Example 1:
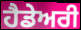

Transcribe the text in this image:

ਹੈਡੇਅਰੀ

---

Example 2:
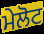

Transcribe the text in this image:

ਮੇਲੋਟ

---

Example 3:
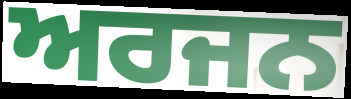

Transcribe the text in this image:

ਅਰਜਨ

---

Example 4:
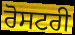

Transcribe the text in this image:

ਰੋਸਟਰੀ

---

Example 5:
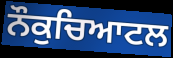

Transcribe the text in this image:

ਨੌਕੁਚਿਆਟਲ